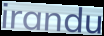
irandu